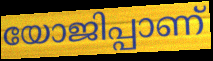
യോജിപ്പാണ്